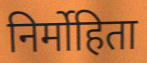
निर्मोहिता